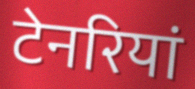
टेनरियां